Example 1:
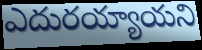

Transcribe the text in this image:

ఎదురయ్యాయని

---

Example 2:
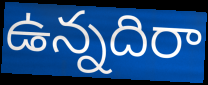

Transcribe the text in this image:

ఉన్నదిరా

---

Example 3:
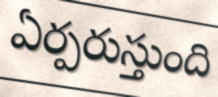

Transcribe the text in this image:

ఏర్పరుస్తుంది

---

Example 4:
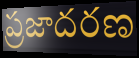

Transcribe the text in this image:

ప్రజాదరణ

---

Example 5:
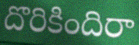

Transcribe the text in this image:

దొరికిందిరా